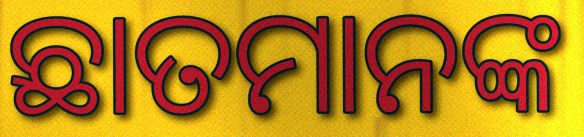
ଛାତମାନଙ୍କ